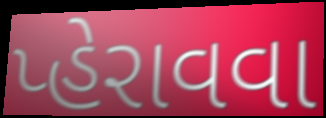
પ્હેરાવવા